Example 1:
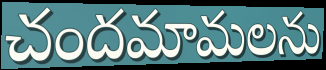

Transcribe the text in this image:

చందమామలను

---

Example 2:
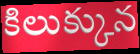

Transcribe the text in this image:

కిలుక్కున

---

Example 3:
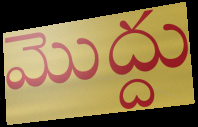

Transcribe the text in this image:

మొద్దు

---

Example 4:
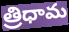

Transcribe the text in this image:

త్రిధామ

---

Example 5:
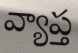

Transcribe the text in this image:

వ్యాప్త